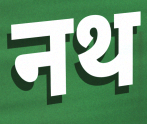
नथ